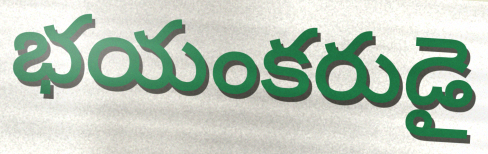
భయంకరుడై